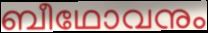
ബീഥോവനും